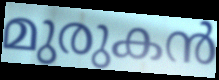
മുരുകൻ